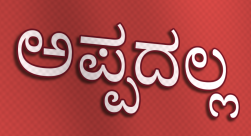
ಅಪ್ಪದಲ್ಲ